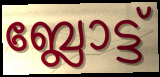
ബ്ലോട്ട്